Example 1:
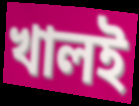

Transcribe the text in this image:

খালই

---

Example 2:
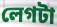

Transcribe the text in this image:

লেগটা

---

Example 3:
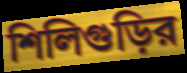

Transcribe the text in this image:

শিলিগুড়ির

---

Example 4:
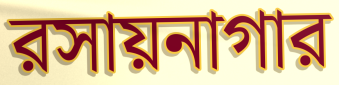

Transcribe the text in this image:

রসায়নাগার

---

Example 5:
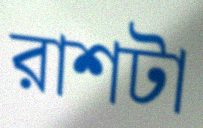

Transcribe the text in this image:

রাশটা